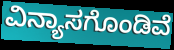
ವಿನ್ಯಾಸಗೊಂಡಿವೆ